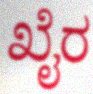
ಖೈರ